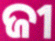
ଜୀ